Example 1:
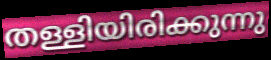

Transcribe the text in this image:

തള്ളിയിരിക്കുന്നു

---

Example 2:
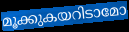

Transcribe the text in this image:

മൂക്കുകയറിടാമോ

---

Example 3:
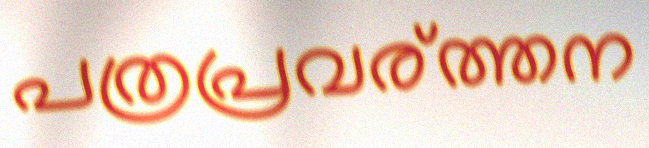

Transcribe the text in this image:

പത്രപ്രവര്ത്തന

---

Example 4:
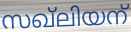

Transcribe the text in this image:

സഖ്ലിയന്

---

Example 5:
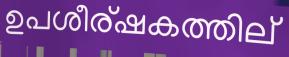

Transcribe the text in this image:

ഉപശീര്ഷകത്തില്